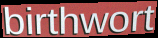
birthwort